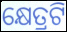
କ୍ଷେତ୍ରଟି